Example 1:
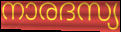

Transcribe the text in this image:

നാരദസ്യ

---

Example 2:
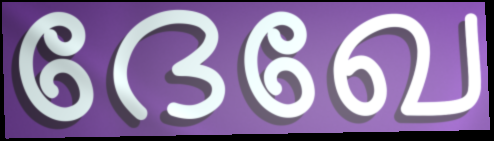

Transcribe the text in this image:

ദേഖേ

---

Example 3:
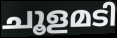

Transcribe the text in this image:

ചൂളമടി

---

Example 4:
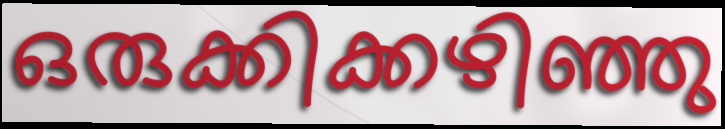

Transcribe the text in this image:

ഒരുക്കിക്കഴിഞ്ഞു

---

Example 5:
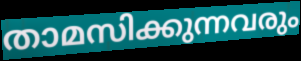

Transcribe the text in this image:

താമസിക്കുന്നവരും